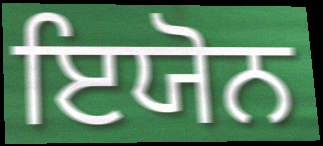
ਇਯੋਨ